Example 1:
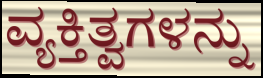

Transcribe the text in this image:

ವ್ಯಕ್ತಿತ್ವಗಳನ್ನು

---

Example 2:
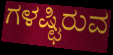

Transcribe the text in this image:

ಗಳಷ್ಟಿರುವ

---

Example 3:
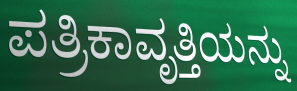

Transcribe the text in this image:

ಪತ್ರಿಕಾವೃತ್ತಿಯನ್ನು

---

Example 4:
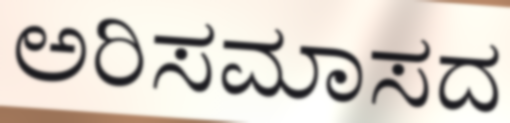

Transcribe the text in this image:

ಅರಿಸಮಾಸದ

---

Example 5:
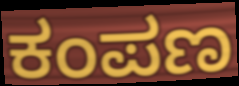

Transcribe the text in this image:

ಕಂಪಣ